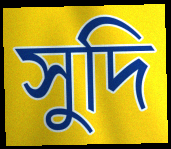
সুদি